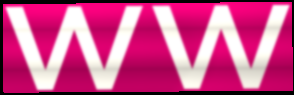
ww